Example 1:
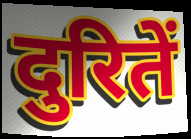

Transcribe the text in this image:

दुरितें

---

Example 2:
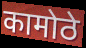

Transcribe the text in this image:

कामोठे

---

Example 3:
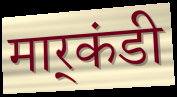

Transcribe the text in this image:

मार्कंडी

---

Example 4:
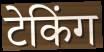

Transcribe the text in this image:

टेकिंग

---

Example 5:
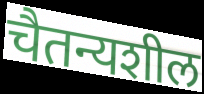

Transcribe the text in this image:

चैतन्यशील